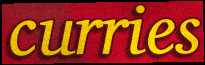
curries